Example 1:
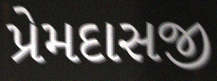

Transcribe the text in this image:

પ્રેમદાસજી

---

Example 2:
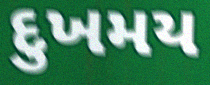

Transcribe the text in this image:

દુખમય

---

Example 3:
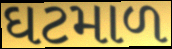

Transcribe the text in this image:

ઘટમાળ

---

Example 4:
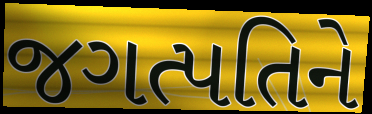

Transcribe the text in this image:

જગત્પતિને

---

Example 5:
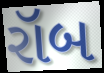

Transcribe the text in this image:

રૉબ